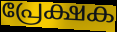
പ്രേക്ഷക